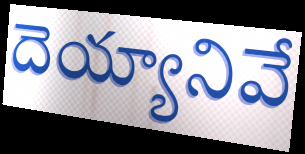
దెయ్యానివే